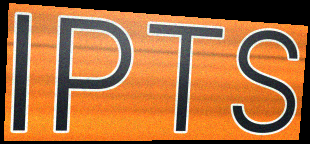
IPTS